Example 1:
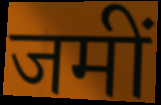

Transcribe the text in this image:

जमीं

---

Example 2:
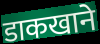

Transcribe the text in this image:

डाकखाने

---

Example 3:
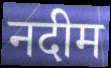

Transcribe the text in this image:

नदीम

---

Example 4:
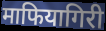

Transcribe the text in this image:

माफियागिरी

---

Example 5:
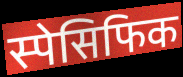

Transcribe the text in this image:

स्पेसिफिक